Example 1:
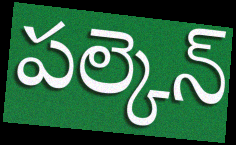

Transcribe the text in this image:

పల్కెన్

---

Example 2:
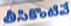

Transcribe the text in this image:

తీసికొంటివే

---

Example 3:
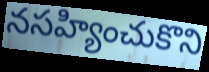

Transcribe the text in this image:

నసహ్యించుకొని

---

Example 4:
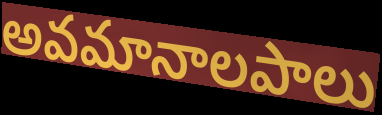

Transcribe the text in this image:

అవమానాలపాలు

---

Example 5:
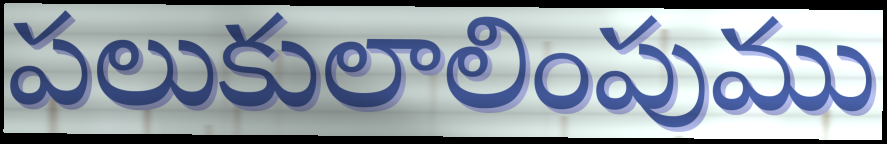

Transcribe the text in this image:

పలుకులాలింపుము